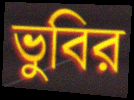
ভুবির